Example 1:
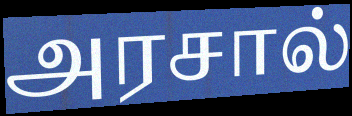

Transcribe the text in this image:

அரசால்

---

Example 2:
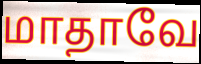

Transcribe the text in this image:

மாதாவே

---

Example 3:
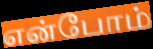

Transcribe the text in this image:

என்போம்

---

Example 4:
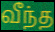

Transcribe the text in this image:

வீந்த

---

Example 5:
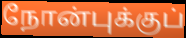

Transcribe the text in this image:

நோன்புக்குப்